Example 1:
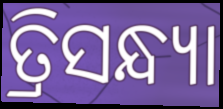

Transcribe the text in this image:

ତ୍ରିସନ୍ଧ୍ୟା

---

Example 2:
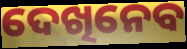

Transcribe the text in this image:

ଦେଖିନେବ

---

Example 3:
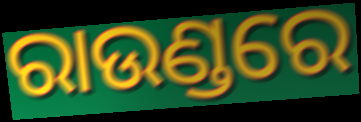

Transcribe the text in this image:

ରାଉଣ୍ଡରେ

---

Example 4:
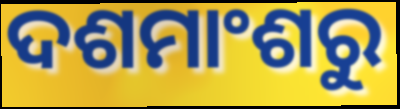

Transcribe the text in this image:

ଦଶମାଂଶରୁ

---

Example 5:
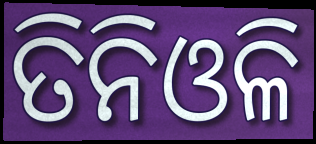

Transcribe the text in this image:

ତିନିଓଳି